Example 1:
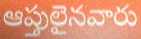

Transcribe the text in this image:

ఆప్తులైనవారు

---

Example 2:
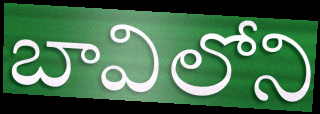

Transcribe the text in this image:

బావిలోని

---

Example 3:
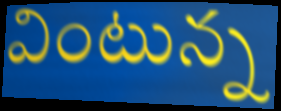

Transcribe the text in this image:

వింటున్న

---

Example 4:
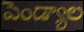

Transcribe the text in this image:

పెండ్యాల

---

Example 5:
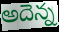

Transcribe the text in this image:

అదెన్న